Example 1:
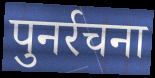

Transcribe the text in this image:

पुनर्रचना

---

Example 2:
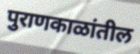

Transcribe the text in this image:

पुराणकाळांतील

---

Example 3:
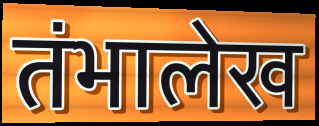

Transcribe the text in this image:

तंभालेख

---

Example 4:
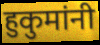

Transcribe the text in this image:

हुकुमांनी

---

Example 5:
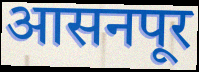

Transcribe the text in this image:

आसनपूर